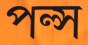
পল্স